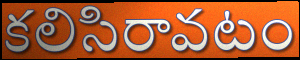
కలిసిరావటం